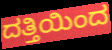
ದತ್ತಿಯಿಂದ